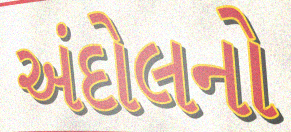
અંદોલનો